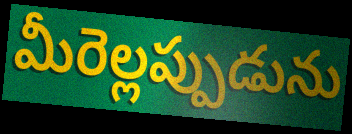
మీరెల్లప్పుడును